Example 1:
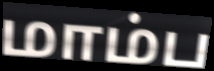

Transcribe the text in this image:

மாம்ப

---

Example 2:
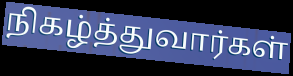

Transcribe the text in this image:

நிகழ்த்துவார்கள்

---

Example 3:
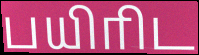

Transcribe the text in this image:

பயிரிட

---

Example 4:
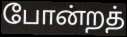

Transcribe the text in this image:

போன்றத்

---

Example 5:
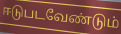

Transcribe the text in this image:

ஈடுபடவேண்டும்